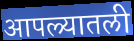
आपल्यातली